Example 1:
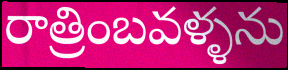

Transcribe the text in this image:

రాత్రింబవళ్ళను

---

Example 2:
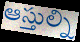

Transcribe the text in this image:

ఆస్తుల్ని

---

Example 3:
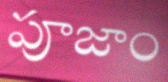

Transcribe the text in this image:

పూజాం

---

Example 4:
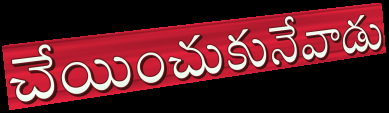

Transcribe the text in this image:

చేయించుకునేవాడు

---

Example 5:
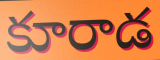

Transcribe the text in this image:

కూరాడ